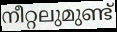
നീറ്റലുമുണ്ട്